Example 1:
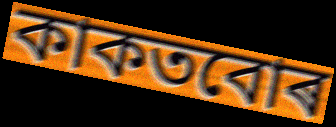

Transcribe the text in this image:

কাকতবোৰ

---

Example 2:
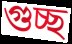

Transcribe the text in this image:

গুচ্ছ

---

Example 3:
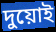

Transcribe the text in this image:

দুয়োই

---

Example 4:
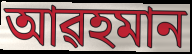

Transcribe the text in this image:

আৱহমান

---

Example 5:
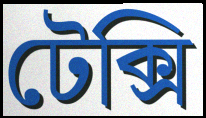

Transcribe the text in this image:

টেক্সি